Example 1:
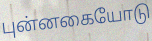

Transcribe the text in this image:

புன்னகையோடு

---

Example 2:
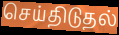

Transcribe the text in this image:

செய்திடுதல்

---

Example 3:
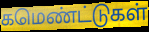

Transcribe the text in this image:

கமெண்ட்டுகள்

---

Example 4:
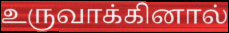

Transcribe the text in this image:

உருவாக்கினால்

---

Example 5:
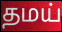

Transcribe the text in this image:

தமய்